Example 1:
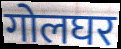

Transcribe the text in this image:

गोलघर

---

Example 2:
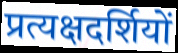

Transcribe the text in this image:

प्रत्यक्षदर्शियों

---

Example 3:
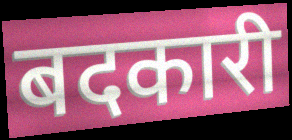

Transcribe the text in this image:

बदकारी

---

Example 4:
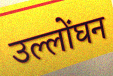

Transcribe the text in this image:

उल्लोंघन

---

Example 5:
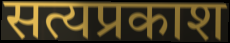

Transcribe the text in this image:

सत्यप्रकाश